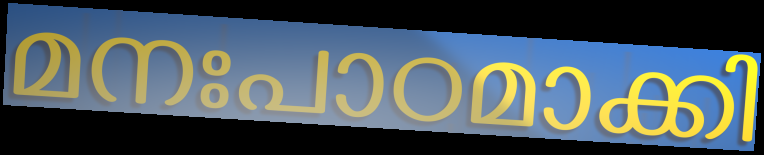
മനഃപാഠമാക്കി